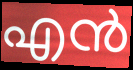
എൻ